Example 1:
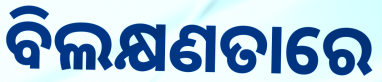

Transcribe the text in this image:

ବିଲକ୍ଷଣତାରେ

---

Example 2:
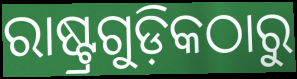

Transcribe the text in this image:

ରାଷ୍ଟ୍ରଗୁଡ଼ିକଠାରୁ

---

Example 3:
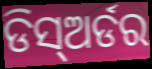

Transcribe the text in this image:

ଡିସ୍ଅର୍ଡର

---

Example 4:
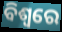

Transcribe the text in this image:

ବିଶ୍ଵରେ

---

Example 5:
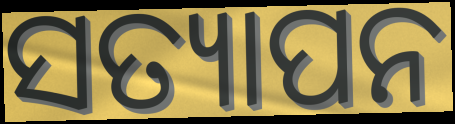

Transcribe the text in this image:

ସତ୍ୟାପନ